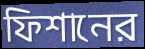
ফিশানের